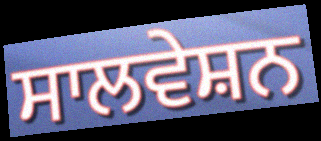
ਸਾਲਵੇਸ਼ਨ